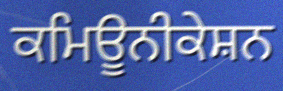
ਕਮਿਊਨੀਕੇਸ਼ਨ